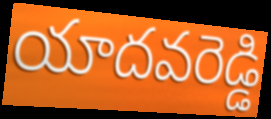
యాదవరెడ్డి